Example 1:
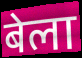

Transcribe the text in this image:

बेला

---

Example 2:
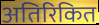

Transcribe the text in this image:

अतिरिकित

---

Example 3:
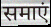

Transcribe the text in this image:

समाएं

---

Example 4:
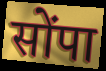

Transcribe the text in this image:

सोंपा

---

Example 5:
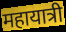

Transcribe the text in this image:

महायात्री